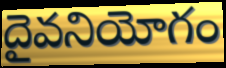
దైవనియోగం